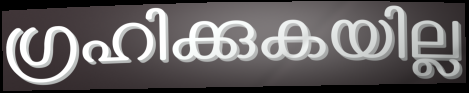
ഗ്രഹിക്കുകയില്ല